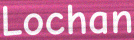
Lochan